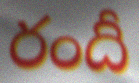
రందీ